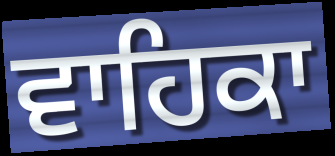
ਵਾਹਿਕਾ